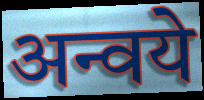
अन्‍वये